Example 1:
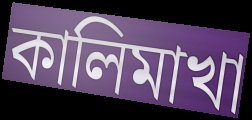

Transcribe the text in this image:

কালিমাখা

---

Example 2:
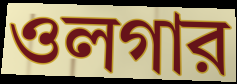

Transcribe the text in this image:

ওলগার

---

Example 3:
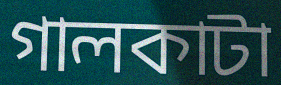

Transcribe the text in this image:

গালকাটা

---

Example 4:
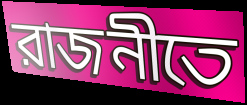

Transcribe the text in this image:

রাজনীতে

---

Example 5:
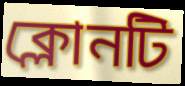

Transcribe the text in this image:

ক্লোনটি